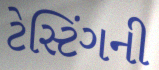
ટેસ્ટિંગની